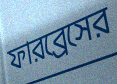
ফারব্রেসের